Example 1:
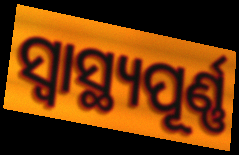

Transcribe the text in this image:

ସ୍ବାସ୍ଥ୍ୟପୂର୍ଣ୍ଣ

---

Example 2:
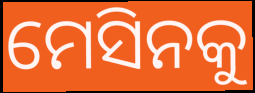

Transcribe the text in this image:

ମେସିନକୁ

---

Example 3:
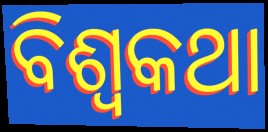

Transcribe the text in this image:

ବିଶ୍ୱକଥା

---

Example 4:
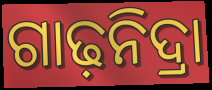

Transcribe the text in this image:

ଗାଢ଼ନିଦ୍ରା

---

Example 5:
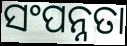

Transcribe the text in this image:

ସଂପନ୍ନତା